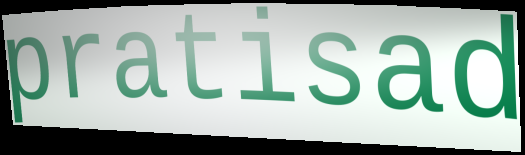
pratisad